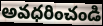
అవధరించండి